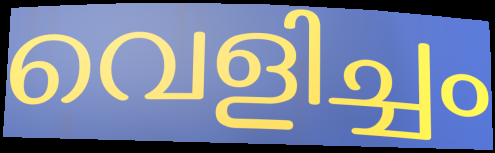
വെളിച്ചം